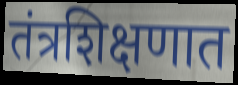
तंत्रशिक्षणात